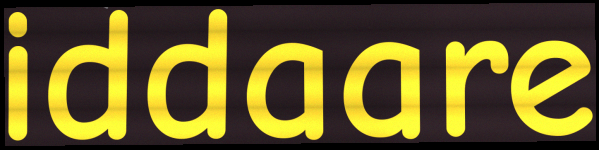
iddaare